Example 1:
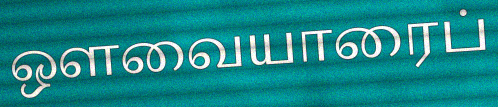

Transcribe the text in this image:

ஔவையாரைப்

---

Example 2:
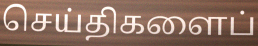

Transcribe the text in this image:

செய்திகளைப்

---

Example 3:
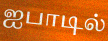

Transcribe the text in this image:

ஐபாடில்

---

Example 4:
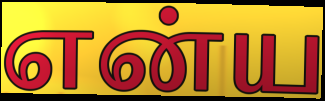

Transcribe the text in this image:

என்ய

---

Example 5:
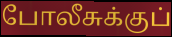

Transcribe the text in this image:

போலீசுக்குப்